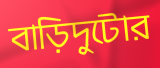
বাড়িদুটোর